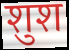
शुश